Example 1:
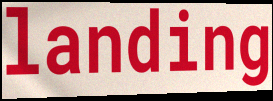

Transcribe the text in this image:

landing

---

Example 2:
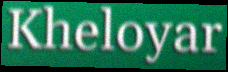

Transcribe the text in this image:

Kheloyar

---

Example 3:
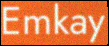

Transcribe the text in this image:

Emkay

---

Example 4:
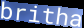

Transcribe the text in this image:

britha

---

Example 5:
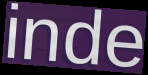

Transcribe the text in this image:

inde